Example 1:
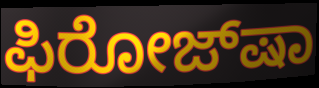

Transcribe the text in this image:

ಫಿರೋಜ್‌ಷಾ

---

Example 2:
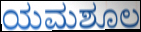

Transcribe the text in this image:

ಯಮಶೂಲ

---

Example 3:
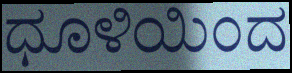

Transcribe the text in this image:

ಧೂಳಿಯಿಂದ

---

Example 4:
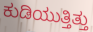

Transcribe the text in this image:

ಕುಡಿಯುತ್ತಿತ್ತು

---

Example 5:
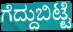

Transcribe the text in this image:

ಗೆದ್ದುಬಿಟ್ಟೆ